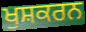
ਖੁਸ਼ਕਰਨ